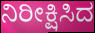
ನಿರೀಕ್ಷಿಸಿದ